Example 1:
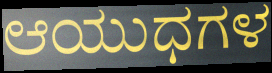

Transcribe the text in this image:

ಆಯುಧಗಳ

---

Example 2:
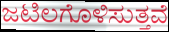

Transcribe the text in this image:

ಜಟಿಲಗೊಳಿಸುತ್ತವೆ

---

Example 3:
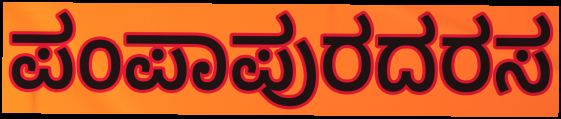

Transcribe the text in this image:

ಪಂಪಾಪುರದರಸ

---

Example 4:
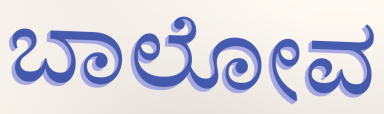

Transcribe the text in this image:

ಬಾಲೋವ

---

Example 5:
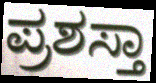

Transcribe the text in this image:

ಪ್ರಶಸ್ತಾ